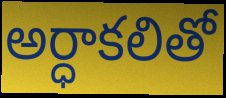
అర్ధాకలితో